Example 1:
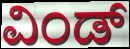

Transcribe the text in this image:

ವಿಂಡ್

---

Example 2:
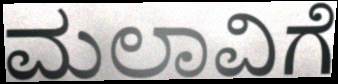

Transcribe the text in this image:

ಮಲಾವಿಗೆ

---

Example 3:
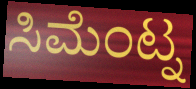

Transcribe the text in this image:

ಸಿಮೆಂಟ್ನ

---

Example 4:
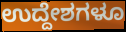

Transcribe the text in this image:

ಉದ್ದೇಶಗಳೂ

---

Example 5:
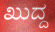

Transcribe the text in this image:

ಖುದ್ದ